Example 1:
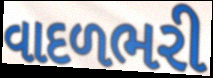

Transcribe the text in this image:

વાદળભરી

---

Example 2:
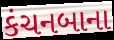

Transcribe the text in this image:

કંચનબાના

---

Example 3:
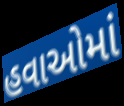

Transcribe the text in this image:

હવાઓમાં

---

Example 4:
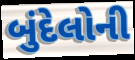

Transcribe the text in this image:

બુંદેલોની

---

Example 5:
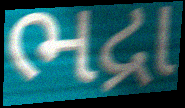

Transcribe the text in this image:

ભદ્રા